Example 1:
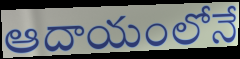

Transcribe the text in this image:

ఆదాయంలోనే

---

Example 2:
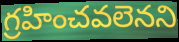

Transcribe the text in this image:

గ్రహించవలెనని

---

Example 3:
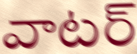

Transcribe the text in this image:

వాటర్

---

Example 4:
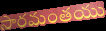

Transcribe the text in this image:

సారమంతయు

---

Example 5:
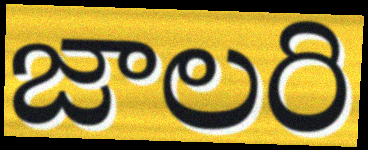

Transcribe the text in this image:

జాలరి